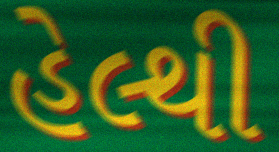
હેલ્થી